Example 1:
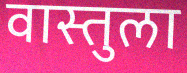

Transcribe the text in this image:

वास्तुला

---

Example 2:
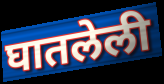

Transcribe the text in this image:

घातलेली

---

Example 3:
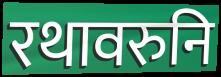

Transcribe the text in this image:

रथावरुनि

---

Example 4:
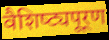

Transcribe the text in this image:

वैशिष्ट्यपूर्ण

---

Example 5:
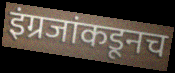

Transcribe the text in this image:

इंग्रजांकडूनच